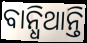
ବାନ୍ଧିଥାନ୍ତି